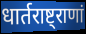
धार्तराष्ट्राणां